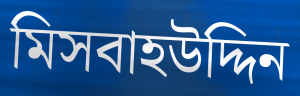
মিসবাহউদ্দিন